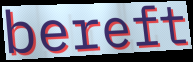
bereft